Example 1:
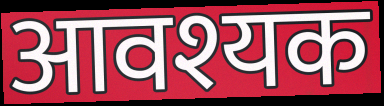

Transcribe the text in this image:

आवश्यक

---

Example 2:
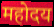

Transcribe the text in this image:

महोदय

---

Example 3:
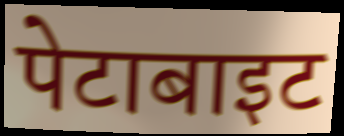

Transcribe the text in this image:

पेटाबाइट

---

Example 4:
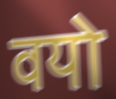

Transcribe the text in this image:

वयो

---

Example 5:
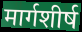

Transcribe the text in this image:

मार्गशीर्ष